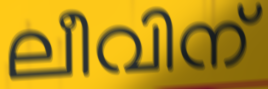
ലീവിന്